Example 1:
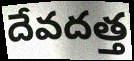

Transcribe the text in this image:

దేవదత్త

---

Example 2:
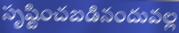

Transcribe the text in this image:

సృష్టించబడినందువల్ల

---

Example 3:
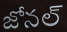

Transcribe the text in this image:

జోనల్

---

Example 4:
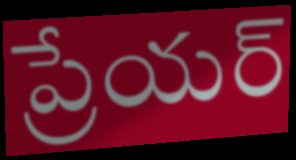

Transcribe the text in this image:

ప్రేయర్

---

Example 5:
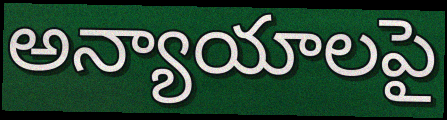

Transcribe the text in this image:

అన్యాయాలపై